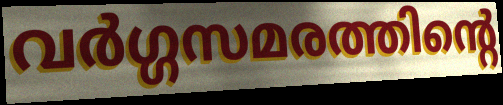
വർഗ്ഗസമരത്തിന്റെ